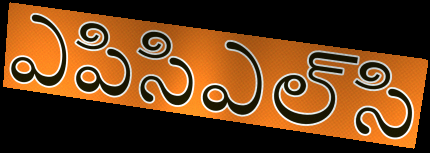
ఎపిసిఎల్‌సి